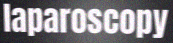
laparoscopy